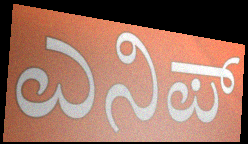
ಎನಿಪ್